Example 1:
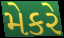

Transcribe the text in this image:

મેકરે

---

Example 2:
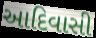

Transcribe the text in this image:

આદિવાસી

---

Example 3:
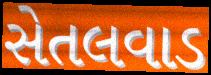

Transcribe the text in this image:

સેતલવાડ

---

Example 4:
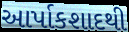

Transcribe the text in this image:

આર્પાકશાદથી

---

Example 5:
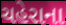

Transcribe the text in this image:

ચહેરાના